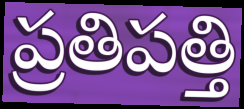
ప్రతిపత్తి